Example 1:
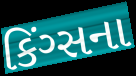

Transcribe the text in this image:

કિંગ્સના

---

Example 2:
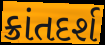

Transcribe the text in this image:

ક્રાંતદર્શ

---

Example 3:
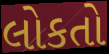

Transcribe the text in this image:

લોકતો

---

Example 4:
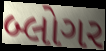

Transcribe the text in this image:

બ્લોગર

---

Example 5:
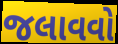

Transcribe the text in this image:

જલાવવો